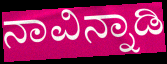
ನಾವಿನ್ನಾಡಿ